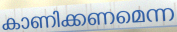
കാണിക്കണമെന്ന